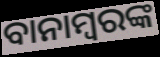
ବାନାମ୍ବରଙ୍କ